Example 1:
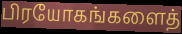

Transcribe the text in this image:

பிரயோகங்களைத்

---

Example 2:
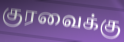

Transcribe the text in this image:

குரவைக்கு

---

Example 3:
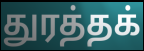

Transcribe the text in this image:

துரத்தக்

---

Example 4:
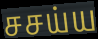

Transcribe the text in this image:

சசய்ய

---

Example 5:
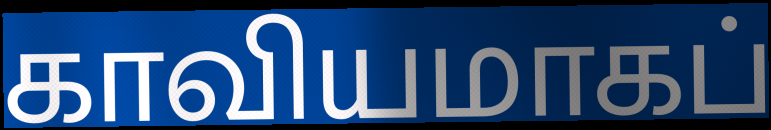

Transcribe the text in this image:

காவியமாகப்